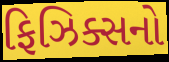
ફિઝિક્સનો